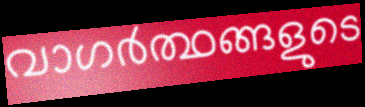
വാഗർത്ഥങ്ങളുടെ